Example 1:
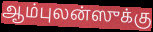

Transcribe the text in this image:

ஆம்புலன்ஸுக்கு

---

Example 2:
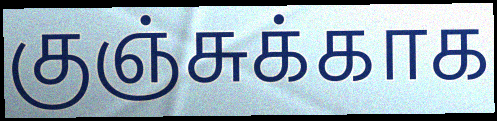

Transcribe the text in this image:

குஞ்சுக்காக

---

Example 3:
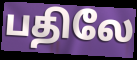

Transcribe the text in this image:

பதிலே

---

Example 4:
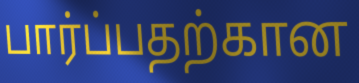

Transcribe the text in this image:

பார்ப்பதற்கான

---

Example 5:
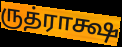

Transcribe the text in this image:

ருத்ராக்ஷ